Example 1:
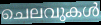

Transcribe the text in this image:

ചെലവുകൾ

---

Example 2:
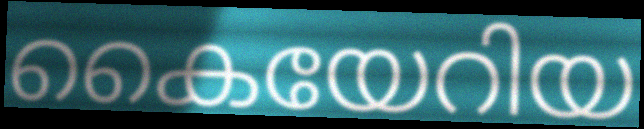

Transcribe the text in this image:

കൈയേറിയ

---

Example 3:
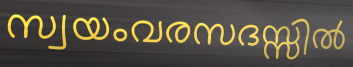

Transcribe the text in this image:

സ്വയംവരസദസ്സിൽ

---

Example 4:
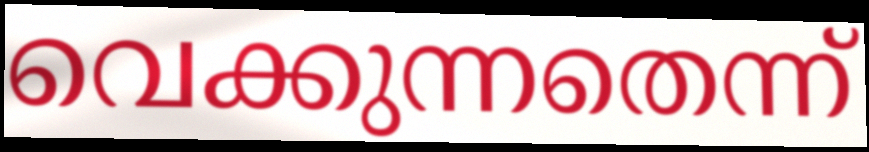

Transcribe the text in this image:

വെക്കുന്നതെന്ന്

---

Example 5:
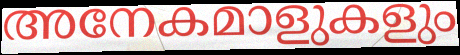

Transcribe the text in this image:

അനേകമാളുകളും